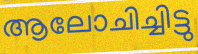
ആലോചിച്ചിട്ടു